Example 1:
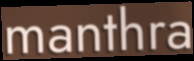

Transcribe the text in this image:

manthra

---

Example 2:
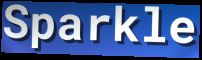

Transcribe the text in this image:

Sparkle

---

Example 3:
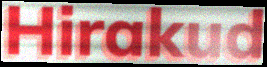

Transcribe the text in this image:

Hirakud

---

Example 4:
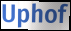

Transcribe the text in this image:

Uphof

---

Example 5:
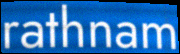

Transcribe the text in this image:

rathnam